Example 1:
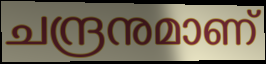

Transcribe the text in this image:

ചന്ദ്രനുമാണ്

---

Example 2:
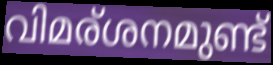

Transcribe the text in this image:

വിമര്ശനമുണ്ട്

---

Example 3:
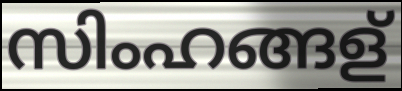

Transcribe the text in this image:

സിംഹങ്ങള്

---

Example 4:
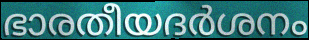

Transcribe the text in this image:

ഭാരതീയദർശനം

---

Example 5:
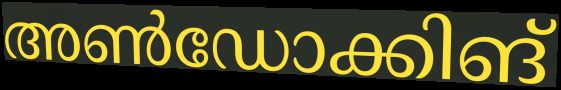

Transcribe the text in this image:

അൺഡോക്കിങ്